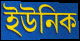
ইউনিক